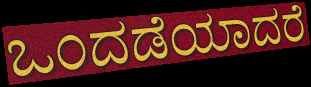
ಒಂದಡೆಯಾದರೆ